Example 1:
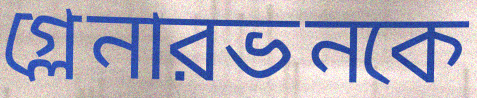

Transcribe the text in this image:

গ্লেনারভনকে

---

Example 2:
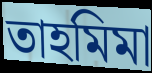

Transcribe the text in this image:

তাহমিমা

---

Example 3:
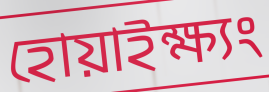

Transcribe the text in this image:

হোয়াইক্ষ্যং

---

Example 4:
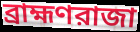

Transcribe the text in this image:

ব্রাহ্মণরাজা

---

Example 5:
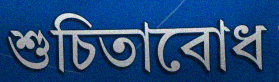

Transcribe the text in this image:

শুচিতাবোধ